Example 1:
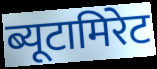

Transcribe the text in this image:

ब्यूटामिरेट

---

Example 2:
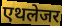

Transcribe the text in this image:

एथलेजर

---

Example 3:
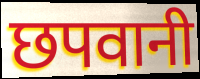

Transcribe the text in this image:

छपवानी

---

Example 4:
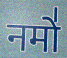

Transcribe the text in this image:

नमो॑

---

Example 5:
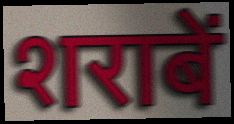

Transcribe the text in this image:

शराबें